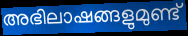
അഭിലാഷങ്ങളുമുണ്ട്